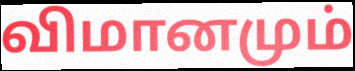
விமானமும்